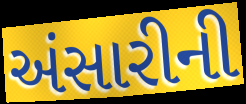
અંસારીની